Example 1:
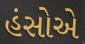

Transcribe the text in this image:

હંસોએ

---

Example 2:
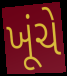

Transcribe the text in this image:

ખૂંચે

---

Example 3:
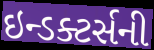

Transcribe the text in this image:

ઇન્ડક્ટર્સની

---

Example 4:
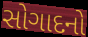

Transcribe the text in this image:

સોગાદનો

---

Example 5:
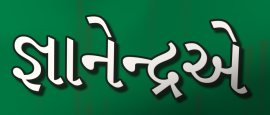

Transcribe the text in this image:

જ્ઞાનેન્દ્રએ